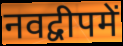
नवद्वीपमें